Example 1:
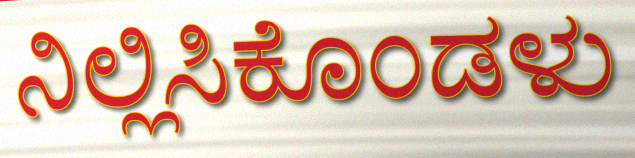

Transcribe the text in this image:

ನಿಲ್ಲಿಸಿಕೊಂಡಳು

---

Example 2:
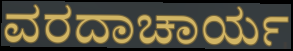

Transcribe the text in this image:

ವರದಾಚಾರ್ಯ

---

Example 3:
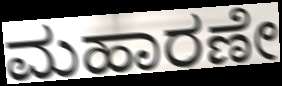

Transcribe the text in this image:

ಮಹಾರಣೇ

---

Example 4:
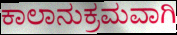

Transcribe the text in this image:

ಕಾಲಾನುಕ್ರಮವಾಗಿ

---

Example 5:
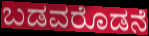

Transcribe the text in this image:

ಬಡವರೊಡನೆ